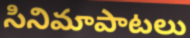
సినిమాపాటలు